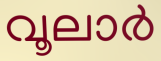
വൂലാർ